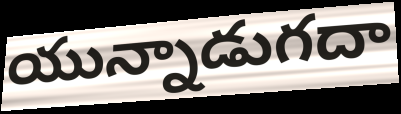
యున్నాడుగదా